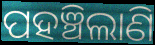
ପହଞ୍ଚିଲାଣି